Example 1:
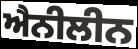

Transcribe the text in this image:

ਐਨੀਲੀਨ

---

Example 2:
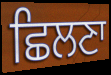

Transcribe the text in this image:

ਛਿਲਣਾ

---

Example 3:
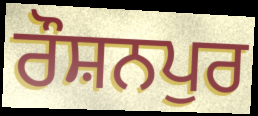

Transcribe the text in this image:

ਰੌਸ਼ਨਪੁਰ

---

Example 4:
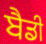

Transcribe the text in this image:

ਬੈਡੀ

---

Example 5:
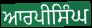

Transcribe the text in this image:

ਆਰਪੀਸਿੰਘ